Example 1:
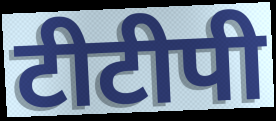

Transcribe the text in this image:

टीटीपी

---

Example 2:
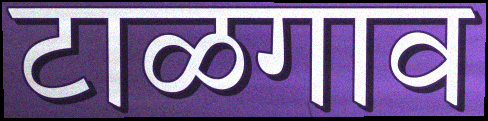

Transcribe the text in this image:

टाळगाव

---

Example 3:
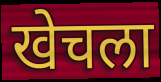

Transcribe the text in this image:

खेचला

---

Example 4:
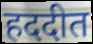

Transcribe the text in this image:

हददीत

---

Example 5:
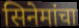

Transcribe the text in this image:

सिनेमांचा